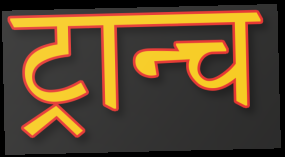
ट्रान्च